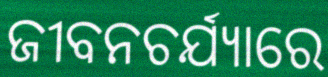
ଜୀବନଚର୍ଯ୍ୟାରେ